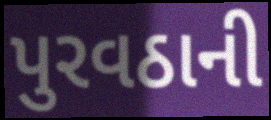
પુરવઠાની